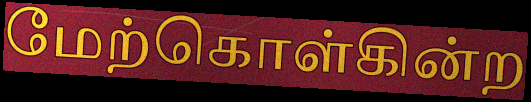
மேற்கொள்கின்ற